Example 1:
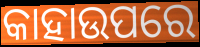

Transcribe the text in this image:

କାହାଉପରେ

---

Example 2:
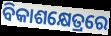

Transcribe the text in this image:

ବିକାଶକ୍ଷେତ୍ରରେ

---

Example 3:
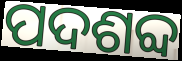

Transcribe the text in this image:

ପଦଶବ୍ଦ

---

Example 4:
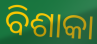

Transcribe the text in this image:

ବିଶାକା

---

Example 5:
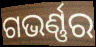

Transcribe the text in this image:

ଗଭର୍ଣ୍ଣର